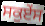
ਸਕੁਏਂਸ